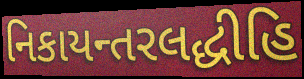
નિકાયન્તરલદ્ધીહિ